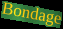
Bondage